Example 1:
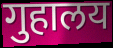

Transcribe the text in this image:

गुहालय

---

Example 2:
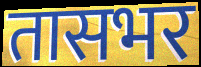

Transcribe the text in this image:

तासभर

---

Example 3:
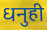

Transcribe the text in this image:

धनुही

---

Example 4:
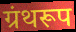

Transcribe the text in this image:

ग्रंथरूप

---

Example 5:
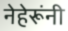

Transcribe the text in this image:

नेहेरूंनी